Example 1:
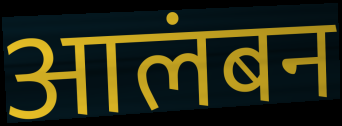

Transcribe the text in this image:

आलंबन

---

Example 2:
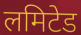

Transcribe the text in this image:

लमिटेड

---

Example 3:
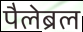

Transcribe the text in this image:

पैलेब्रल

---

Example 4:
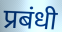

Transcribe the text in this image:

प्रबंधी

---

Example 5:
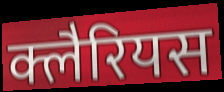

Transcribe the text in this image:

क्लैरियस